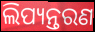
ଲିପ୍ୟନ୍ତରଣ